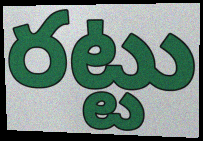
రట్టు